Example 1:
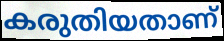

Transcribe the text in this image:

കരുതിയതാണ്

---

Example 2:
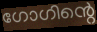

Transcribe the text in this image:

ഗോഗിന്റെ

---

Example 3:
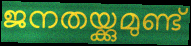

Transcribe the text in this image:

ജനതയ്ക്കുമുണ്ട്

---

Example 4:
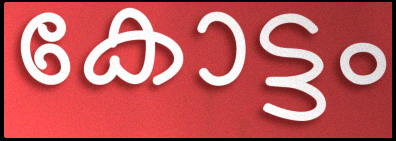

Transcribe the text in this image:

കോട്ടം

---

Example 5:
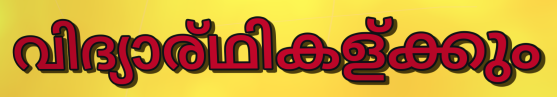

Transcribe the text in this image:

വിദ്യാര്ഥികള്ക്കും